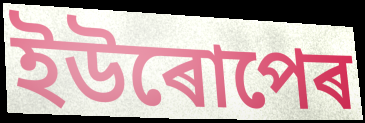
ইউৰোপেৰ